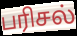
பரிசல்